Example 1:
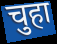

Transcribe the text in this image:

चुहा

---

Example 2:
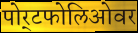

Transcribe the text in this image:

पोर्टफोलिओवर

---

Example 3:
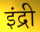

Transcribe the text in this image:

इंद्री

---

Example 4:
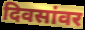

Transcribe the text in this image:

दिवसांवर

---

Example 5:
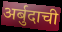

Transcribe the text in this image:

अर्बुदाची